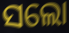
ସଲୋ